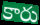
కారు